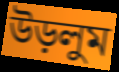
উড়লুম